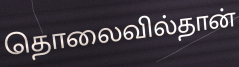
தொலைவில்தான்